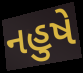
નહુષે